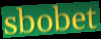
sbobet